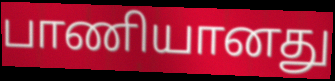
பாணியானது